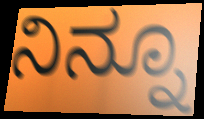
ನಿನ್ನೂ